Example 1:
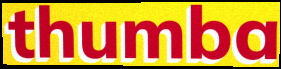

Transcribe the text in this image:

thumba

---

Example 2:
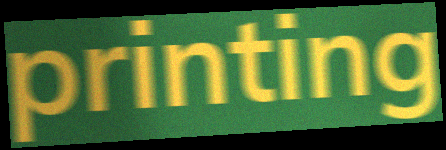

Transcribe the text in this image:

printing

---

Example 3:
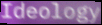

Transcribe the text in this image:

Ideology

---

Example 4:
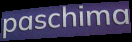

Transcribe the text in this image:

paschima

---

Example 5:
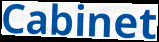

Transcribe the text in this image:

Cabinet